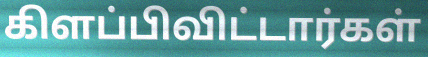
கிளப்பிவிட்டார்கள்